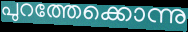
പുറത്തേക്കൊന്നു